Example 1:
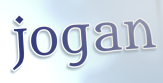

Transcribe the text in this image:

jogan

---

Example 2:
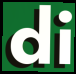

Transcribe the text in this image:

di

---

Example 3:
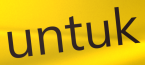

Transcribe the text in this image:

untuk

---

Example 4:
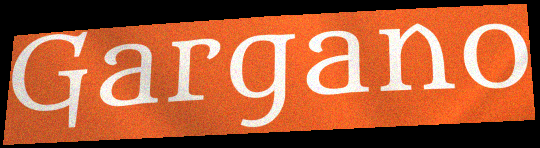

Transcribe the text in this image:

Gargano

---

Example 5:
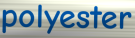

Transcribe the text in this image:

polyester